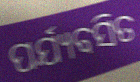
ପର୍ଯ୍ୟବସିତ